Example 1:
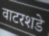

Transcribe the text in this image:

वाटरशडे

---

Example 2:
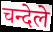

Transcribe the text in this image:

चन्देले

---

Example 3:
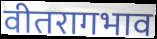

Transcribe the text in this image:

वीतरागभाव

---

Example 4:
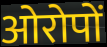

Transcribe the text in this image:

ओरोपों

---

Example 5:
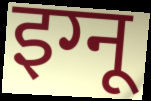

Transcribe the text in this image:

इग्‍नू